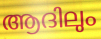
ആദിലും